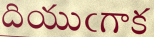
దియుఁగాక